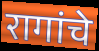
रागांचे